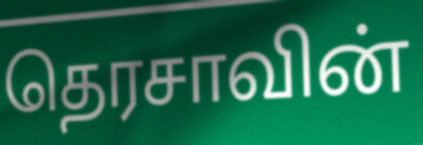
தெரசாவின்